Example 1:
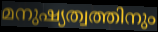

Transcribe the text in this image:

മനുഷ്യത്വത്തിനും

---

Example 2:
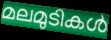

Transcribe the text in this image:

മലമുടികൾ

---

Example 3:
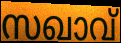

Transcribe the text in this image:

സഖാവ്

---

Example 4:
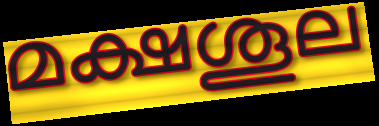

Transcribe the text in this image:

മക്ഷശൂല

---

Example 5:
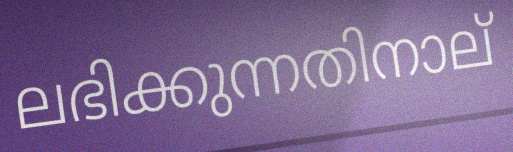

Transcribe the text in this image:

ലഭിക്കുന്നതിനാല്